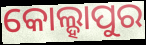
କୋଲ୍ହାପୁର